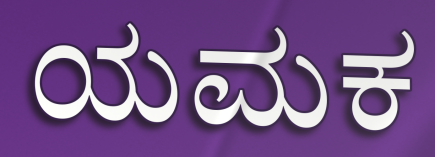
ಯಮಕ